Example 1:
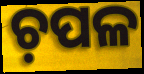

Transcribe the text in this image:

ଚ଼ପଳ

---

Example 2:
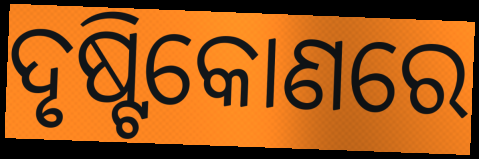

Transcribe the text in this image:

ଦୃଷ୍ଟିକୋଣରେ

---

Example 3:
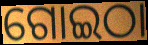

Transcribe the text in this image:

ଗୋଇଠା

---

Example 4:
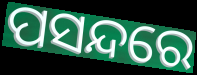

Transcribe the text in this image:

ପସନ୍ଦରେ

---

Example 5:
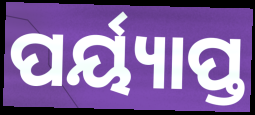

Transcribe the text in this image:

ପର୍ୟ୍ୟାପ୍ତ